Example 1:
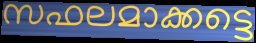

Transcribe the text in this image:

സഫലമാക്കട്ടെ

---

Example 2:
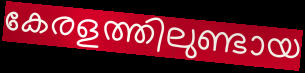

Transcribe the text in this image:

കേരളത്തിലുണ്ടായ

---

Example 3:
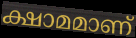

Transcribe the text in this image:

ക്ഷാമമാണ്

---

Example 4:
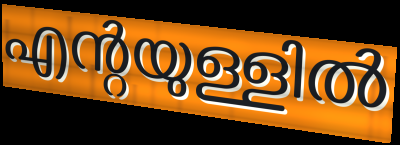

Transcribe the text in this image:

എന്റയുള്ളിൽ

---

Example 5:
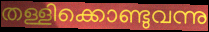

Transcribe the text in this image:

തള്ളിക്കൊണ്ടുവന്നു